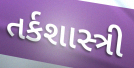
તર્કશાસ્ત્રી